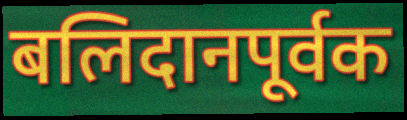
बलिदानपूर्वक